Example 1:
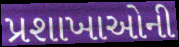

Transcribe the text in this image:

પ્રશાખાઓની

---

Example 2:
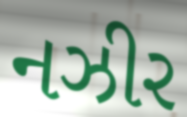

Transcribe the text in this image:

નઝીર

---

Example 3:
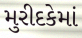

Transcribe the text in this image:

મુરીદકેમાં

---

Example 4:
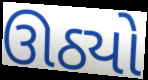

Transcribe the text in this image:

ઊઠ્યો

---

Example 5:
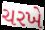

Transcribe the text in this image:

ચરખે